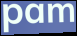
pam